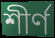
শীৰ্ণ